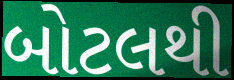
બોટલથી